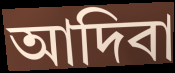
আদিবা